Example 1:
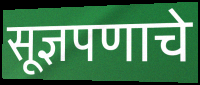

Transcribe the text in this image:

सूज्ञपणाचे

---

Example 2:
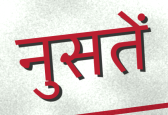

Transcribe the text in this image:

नुसतें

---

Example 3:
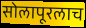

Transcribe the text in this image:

सोलापूरलाच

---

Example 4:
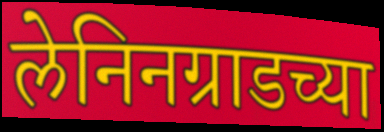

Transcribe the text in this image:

लेनिनग्राडच्या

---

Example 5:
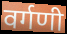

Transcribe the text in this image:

वर्गणी